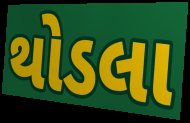
થોડલા